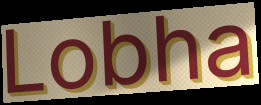
Lobha